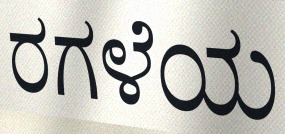
ರಗಳೆಯ